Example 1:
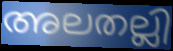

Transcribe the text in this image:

അലതല്ലി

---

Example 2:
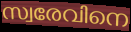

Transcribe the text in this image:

സ്വരേവിനെ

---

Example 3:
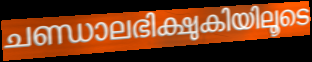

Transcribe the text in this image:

ചണ്ഡാലഭിക്ഷുകിയിലൂടെ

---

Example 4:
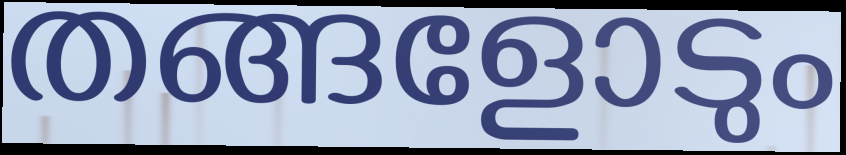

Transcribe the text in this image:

തങ്ങളോടും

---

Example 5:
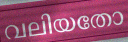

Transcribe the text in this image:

വലിയതോ